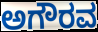
ಅಗೌರವ